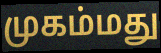
முகம்மது